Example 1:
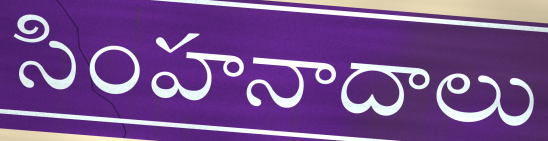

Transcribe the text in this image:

సింహనాదాలు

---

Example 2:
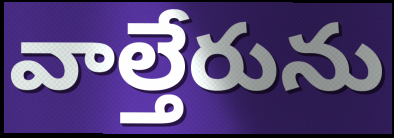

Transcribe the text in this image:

వాల్తేరును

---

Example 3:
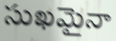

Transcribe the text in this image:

సుఖమైనా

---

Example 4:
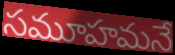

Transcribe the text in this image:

సమూహమనే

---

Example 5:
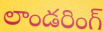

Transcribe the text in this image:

లాండరింగ్